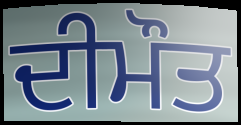
ਦੀਮੌਤ